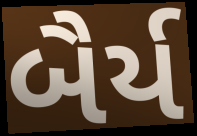
બૈર્ય